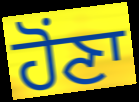
ਹੋਂਣਾ